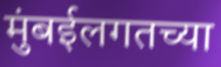
मुंबईलगतच्या